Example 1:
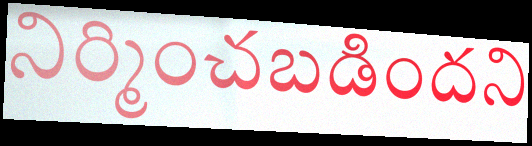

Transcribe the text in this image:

నిర్మించబడిందని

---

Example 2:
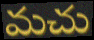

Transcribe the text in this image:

మచు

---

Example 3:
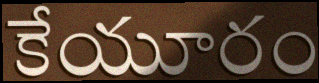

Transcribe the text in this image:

కేయూరం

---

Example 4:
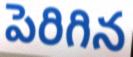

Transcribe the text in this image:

పెరిగిన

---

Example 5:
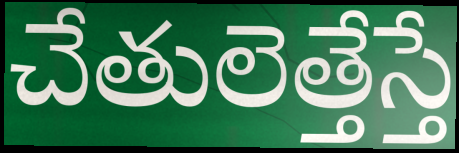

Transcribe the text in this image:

చేతులెత్తేస్తే